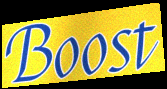
Boost